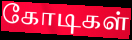
கோடிகள்